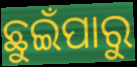
ଛୁଇଁପାରୁ